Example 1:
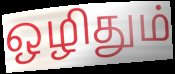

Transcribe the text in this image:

ஒழிதும்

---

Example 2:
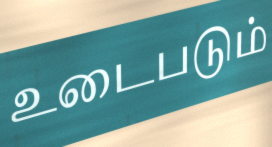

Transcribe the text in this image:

உடைபடும்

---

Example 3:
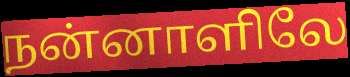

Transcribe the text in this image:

நன்னாளிலே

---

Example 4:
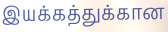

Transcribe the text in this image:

இயக்கத்துக்கான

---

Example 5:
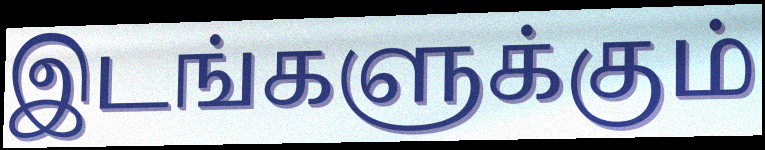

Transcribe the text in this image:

இடங்களுக்கும்